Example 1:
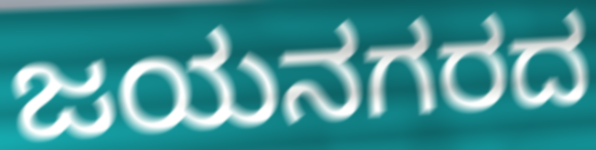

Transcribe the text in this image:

ಜಯನಗರದ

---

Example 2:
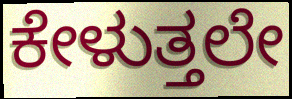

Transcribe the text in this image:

ಕೇಳುತ್ತಲೇ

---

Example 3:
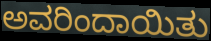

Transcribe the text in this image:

ಅವರಿಂದಾಯಿತು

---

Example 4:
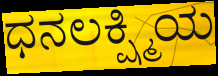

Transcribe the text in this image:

ಧನಲಕ್ಷ್ಮಿಯ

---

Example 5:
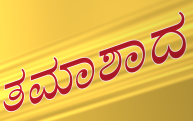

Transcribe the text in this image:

ತಮಾಶಾದ